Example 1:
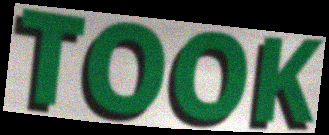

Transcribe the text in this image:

TOOK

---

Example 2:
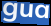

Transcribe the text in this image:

gua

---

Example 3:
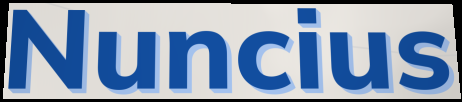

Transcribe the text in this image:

Nuncius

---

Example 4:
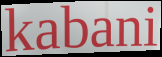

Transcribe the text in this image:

kabani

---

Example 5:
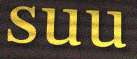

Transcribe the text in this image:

suu